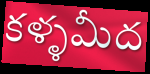
కళ్ళమీద